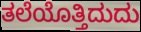
ತಲೆಯೊತ್ತಿದುದು